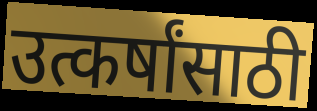
उत्कर्षांसाठी